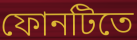
ফোনটিতে